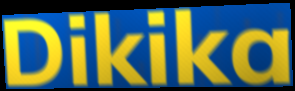
Dikika